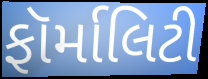
ફૉર્માલિટી